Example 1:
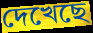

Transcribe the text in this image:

দেখেছে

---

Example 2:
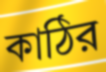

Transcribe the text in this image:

কাঠির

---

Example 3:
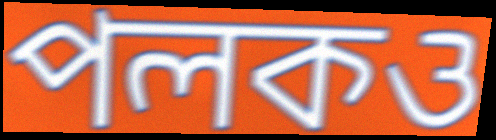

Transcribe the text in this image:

পলকও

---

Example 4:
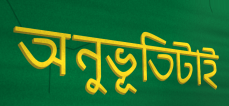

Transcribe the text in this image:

অনুভূতিটাই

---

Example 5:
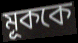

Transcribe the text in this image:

মূককে